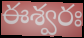
ఈశ్వరః